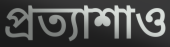
প্রত্যাশাও